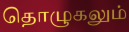
தொழுகலும்